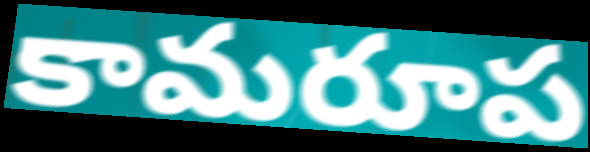
కామరూప